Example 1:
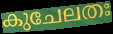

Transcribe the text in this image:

കുചേലതഃ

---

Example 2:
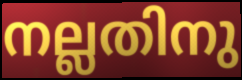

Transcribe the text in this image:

നല്ലതിനു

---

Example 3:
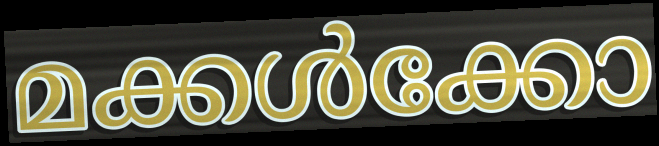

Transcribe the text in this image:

മക്കൾക്കോ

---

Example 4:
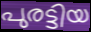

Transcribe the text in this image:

പുരട്ടിയ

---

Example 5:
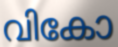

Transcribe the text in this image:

വികോ